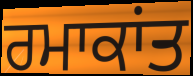
ਰਮਾਕਾਂਤ